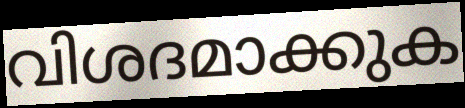
വിശദമാക്കുക